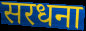
सरधना